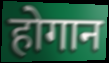
होगान